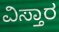
ವಿಸ್ತಾರ